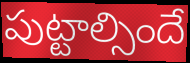
పుట్టాల్సిందే